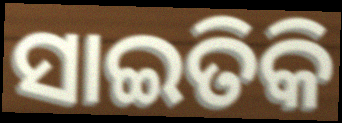
ସାଇତିକି